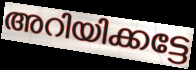
അറിയിക്കട്ടേ